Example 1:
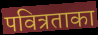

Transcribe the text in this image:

पवित्रताका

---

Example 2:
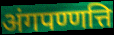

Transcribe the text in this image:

अंगपण्णत्ति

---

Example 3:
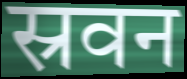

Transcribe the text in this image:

स्रवन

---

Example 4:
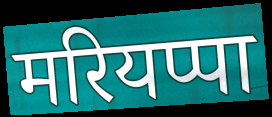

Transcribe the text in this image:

मरियप्पा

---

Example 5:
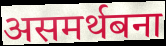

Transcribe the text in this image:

असमर्थबना